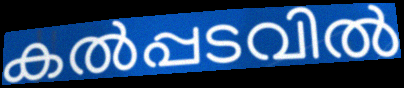
കൽപ്പടവിൽ